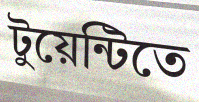
টুয়েন্টিতে